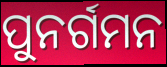
ପୁନର୍ଗମନ